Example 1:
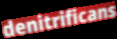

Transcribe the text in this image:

denitrificans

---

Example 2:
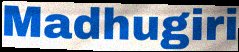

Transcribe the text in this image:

Madhugiri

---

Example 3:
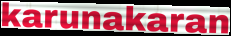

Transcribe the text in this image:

karunakaran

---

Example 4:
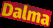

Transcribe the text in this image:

Dalma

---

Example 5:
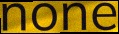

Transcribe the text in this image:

none